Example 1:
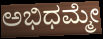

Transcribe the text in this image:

ಅಭಿಧಮ್ಮೇ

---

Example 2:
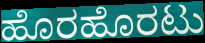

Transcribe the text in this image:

ಹೊರಹೊರಟು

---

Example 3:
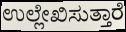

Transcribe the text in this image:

ಉಲ್ಲೇಖಿಸುತ್ತಾರೆ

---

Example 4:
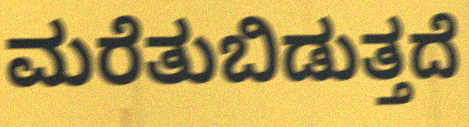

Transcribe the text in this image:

ಮರೆತುಬಿಡುತ್ತದೆ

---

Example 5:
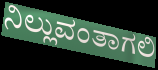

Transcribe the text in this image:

ನಿಲ್ಲುವಂತಾಗಲಿ